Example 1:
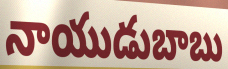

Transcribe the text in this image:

నాయుడుబాబు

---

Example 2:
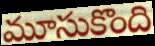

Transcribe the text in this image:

మూసుకొంది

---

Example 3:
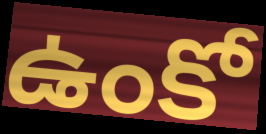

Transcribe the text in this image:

ఉంకో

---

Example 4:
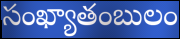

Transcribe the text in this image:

సంఖ్యాతంబులం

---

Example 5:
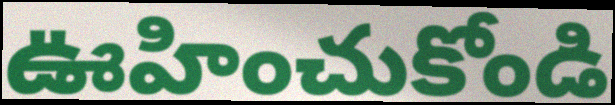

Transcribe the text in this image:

ఊహించుకోండి